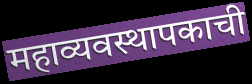
महाव्यवस्थापकाची